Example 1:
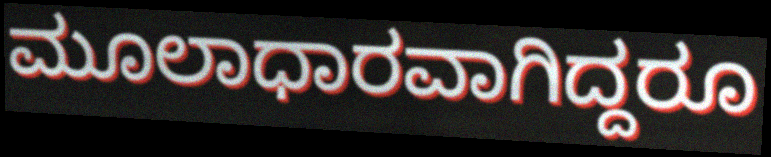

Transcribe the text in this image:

ಮೂಲಾಧಾರವಾಗಿದ್ದರೂ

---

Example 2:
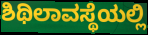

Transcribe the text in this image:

ಶಿಥಿಲಾವಸ್ಥೆಯಲ್ಲಿ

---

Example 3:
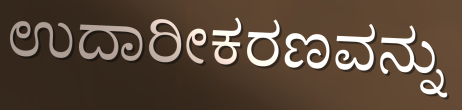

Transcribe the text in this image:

ಉದಾರೀಕರಣವನ್ನು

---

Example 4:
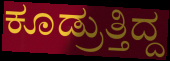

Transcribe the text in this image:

ಕೂಡ್ರುತ್ತಿದ್ದ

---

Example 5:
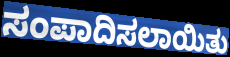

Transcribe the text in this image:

ಸಂಪಾದಿಸಲಾಯಿತು